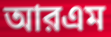
আরএম